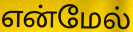
என்மேல்